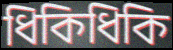
ধিকিধিকি